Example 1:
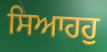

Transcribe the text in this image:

ਸਿਆਹਹੁ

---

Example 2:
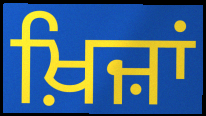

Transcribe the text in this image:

ਖ਼ਿਜ਼ਾਂ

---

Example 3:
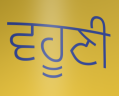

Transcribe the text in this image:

ਵਹੂਣੀ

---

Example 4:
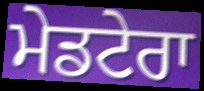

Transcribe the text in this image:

ਮੇਡਟੇਰਾ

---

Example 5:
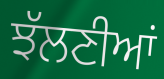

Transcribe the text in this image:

ਝੱਲਣੀਆਂ